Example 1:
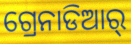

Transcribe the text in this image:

ଗ୍ରେନାଡିଆର୍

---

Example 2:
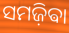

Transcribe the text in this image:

ସମଜ଼ିଵା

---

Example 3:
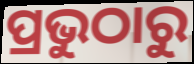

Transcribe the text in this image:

ପ୍ରଭୁଠାରୁ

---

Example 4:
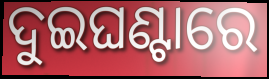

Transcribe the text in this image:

ଦୁଇଘଣ୍ଟାରେ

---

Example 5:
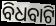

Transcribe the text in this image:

ବିଧବାଟି